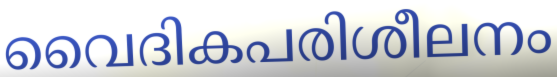
വൈദികപരിശീലനം